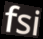
fsi